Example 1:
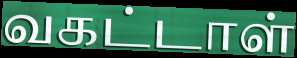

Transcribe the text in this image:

வகட்டாள்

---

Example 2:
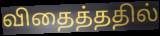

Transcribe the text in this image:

விதைத்ததில்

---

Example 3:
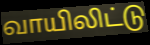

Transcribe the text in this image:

வாயிலிட்டு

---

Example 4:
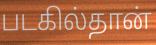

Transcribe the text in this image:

படகில்தான்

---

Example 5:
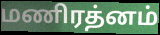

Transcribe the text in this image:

மணிரத்னம்